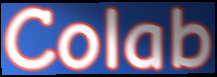
Colab